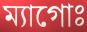
ম্যাগোঃ